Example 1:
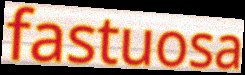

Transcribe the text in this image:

fastuosa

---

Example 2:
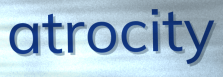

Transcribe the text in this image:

atrocity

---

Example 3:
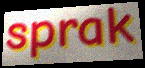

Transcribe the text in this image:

sprak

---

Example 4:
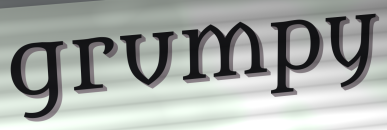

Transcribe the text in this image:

grumpy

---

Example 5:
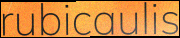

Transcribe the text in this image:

rubicaulis